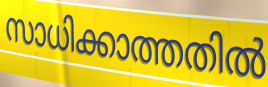
സാധിക്കാത്തതിൽ